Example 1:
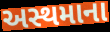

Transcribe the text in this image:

અસ્થમાના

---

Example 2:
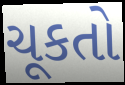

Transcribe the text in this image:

ચૂકતો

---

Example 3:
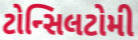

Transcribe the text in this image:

ટોન્સિલટોમી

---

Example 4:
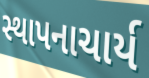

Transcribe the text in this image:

સ્થાપનાચાર્ય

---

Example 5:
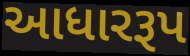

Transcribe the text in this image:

આધારરૂપ